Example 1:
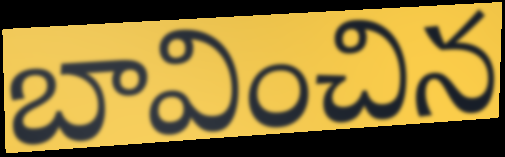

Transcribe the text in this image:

బావించిన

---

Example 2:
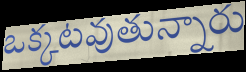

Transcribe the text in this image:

ఒక్కటవుతున్నారు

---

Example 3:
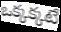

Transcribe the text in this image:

ఒక్కక్కటే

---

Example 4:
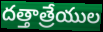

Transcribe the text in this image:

దత్తాత్రేయుల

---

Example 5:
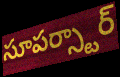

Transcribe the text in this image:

సూపర్స్టార్